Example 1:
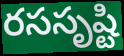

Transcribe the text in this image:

రససృష్టి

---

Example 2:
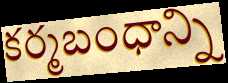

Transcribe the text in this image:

కర్మబంధాన్ని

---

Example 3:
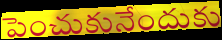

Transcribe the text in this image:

పెంచుకునేందుకు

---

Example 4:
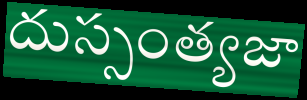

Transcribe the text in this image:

దుస్సంత్యజా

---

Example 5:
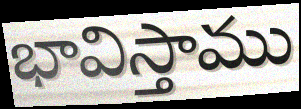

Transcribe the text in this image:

భావిస్తాము